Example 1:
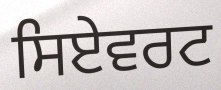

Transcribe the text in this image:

ਸਿਏਵਰਟ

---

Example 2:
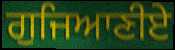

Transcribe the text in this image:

ਗੁਜਿਆਣੀਏ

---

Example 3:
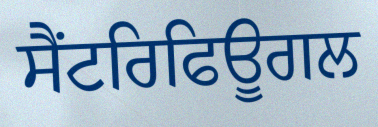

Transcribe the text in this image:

ਸੈਂਟਰਿਫਿਊਗਲ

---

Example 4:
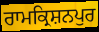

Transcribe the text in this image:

ਰਾਮਕ੍ਰਿਸ਼ਨਪੁਰ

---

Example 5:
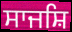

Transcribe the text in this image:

ਸਾਜਸ਼ਿ